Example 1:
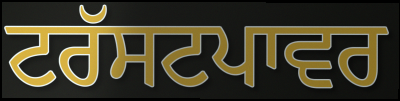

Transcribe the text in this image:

ਟਰੱਸਟਪਾਵਰ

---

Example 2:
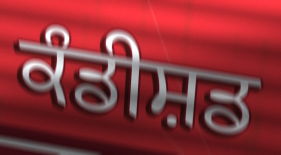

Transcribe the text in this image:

ਕੰਡੀਸ਼ਡ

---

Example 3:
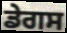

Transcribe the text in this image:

ਡੇਗਸ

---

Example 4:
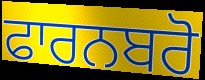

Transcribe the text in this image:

ਫਾਰਨਬਰੋ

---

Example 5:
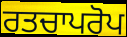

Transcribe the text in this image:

ਰਤਚਾਪਰੋਪ